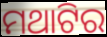
ମଥାଟିର